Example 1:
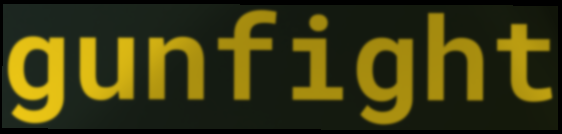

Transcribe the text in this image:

gunfight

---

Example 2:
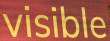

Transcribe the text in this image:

visible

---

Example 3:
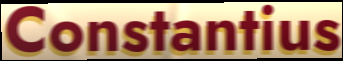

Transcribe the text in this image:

Constantius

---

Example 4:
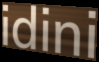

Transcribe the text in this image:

idini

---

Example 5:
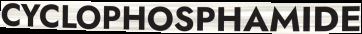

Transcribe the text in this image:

CYCLOPHOSPHAMIDE